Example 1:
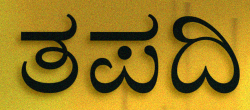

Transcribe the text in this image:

ತಪದಿ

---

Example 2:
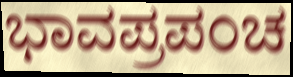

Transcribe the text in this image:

ಭಾವಪ್ರಪಂಚ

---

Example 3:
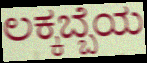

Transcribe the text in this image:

ಲಕ್ಕಬ್ಬೆಯ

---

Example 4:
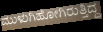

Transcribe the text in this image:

ಮುಳುಗಿಹೋಗಿರುತ್ತಿದ್ದ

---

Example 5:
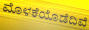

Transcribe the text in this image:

ಮೊಳಕೆಯೊಡೆದಿವೆ